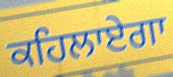
ਕਹਿਲਾਏਗਾ